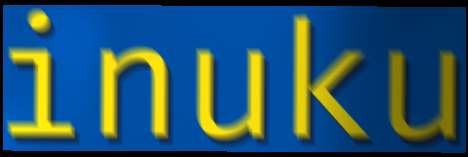
inuku